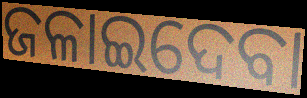
ଜଳାଇଦେବା